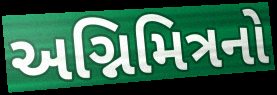
અગ્નિમિત્રનો